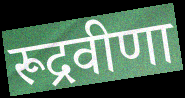
रूद्रवीणा